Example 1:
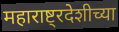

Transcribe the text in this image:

महाराष्ट्रदेशीच्या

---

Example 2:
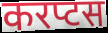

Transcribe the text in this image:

करप्टस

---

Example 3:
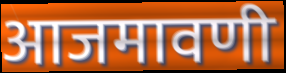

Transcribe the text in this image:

आजमावणी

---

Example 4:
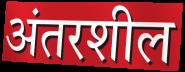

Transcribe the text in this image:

अंतरशील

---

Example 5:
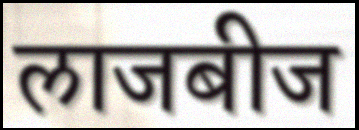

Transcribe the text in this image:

लाजबीज